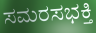
ಸಮರಸಭಕ್ತಿ